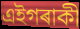
এইগৰাকী